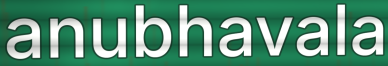
anubhavala